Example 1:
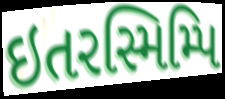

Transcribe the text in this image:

ઇતરસ્મિમ્પિ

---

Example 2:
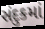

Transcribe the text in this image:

સંદુકમાં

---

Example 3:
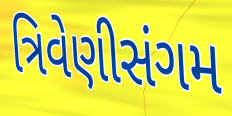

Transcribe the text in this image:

ત્રિવેણીસંગમ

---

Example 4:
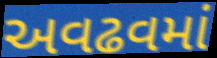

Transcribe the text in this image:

અવઢવમાં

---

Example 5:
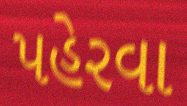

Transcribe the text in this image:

પહેરવા